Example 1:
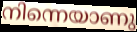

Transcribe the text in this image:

നിന്നെയാണു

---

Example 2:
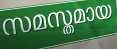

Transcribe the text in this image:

സമസ്തമായ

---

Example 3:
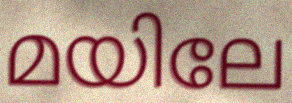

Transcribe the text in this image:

മയിലേ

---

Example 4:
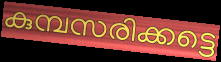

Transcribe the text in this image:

കുമ്പസരിക്കട്ടെ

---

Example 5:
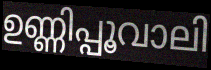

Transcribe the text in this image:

ഉണ്ണിപ്പൂവാലി